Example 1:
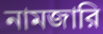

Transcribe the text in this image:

নামজারি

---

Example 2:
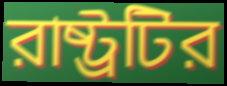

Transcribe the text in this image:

রাষ্ট্রটির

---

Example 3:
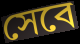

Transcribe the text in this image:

সেবে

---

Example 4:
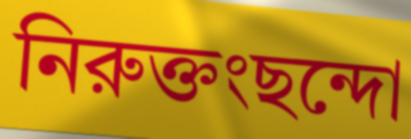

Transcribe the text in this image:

নিরুক্তংছন্দো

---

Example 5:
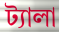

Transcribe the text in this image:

ট্যালা